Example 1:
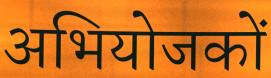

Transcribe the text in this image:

अभियोजकों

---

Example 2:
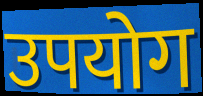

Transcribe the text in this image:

उपयोग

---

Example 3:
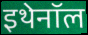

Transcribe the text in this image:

इथेनॉल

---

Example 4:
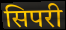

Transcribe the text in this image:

सिपरी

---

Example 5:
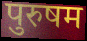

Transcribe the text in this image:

पुरुषम